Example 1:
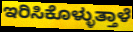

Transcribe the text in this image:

ಇರಿಸಿಕೊಳ್ಳುತ್ತಾಳೆ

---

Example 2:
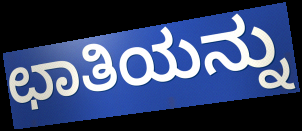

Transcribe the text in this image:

ಛಾತಿಯನ್ನು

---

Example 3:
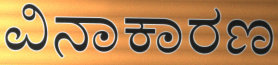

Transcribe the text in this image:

ವಿನಾಕಾರಣ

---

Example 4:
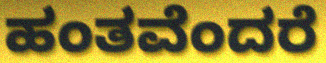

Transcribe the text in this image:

ಹಂತವೆಂದರೆ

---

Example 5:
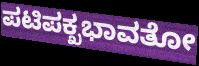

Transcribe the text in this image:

ಪಟಿಪಕ್ಖಭಾವತೋ